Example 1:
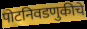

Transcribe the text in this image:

पोटनिवडणुकीचे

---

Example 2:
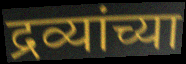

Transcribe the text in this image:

द्रव्यांच्या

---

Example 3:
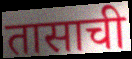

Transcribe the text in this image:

तासाची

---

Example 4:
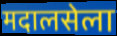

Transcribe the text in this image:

मदालसेला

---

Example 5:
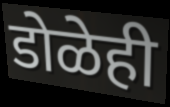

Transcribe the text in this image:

डोळेही